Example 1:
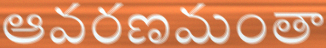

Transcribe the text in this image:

ఆవరణమంతా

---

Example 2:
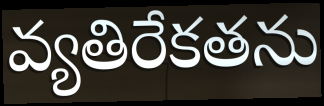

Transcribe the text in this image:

వ్యతిరేకతను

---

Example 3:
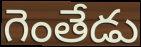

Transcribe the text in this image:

గెంతేడు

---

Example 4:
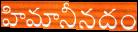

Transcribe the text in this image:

హిమానీనదం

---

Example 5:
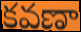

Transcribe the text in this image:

కవణా